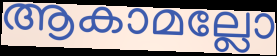
ആകാമല്ലോ